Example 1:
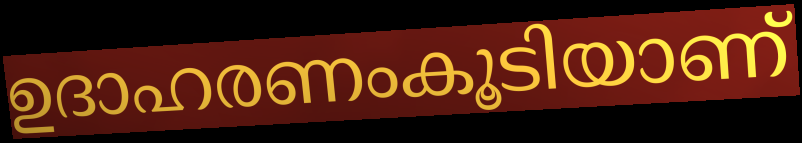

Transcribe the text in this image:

ഉദാഹരണംകൂടിയാണ്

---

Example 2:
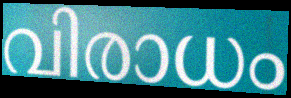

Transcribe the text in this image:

വിരാധം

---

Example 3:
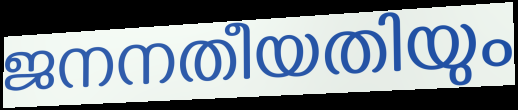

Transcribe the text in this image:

ജനനതീയതിയും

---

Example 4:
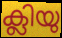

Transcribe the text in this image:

ക്ലിയു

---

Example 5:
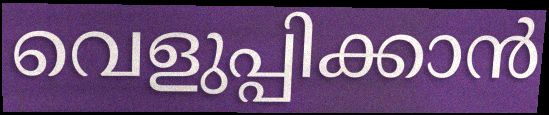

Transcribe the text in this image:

വെളുപ്പിക്കാൻ